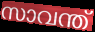
സാവന്ത്